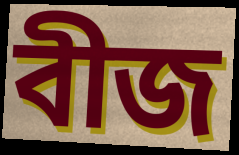
বীজ